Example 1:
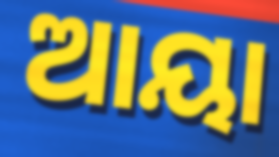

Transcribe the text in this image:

ଆୟା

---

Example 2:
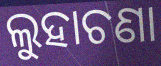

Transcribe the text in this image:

ଲୁହାଚଣା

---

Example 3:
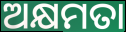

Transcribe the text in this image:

ଅକ୍ଷମତା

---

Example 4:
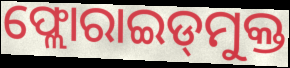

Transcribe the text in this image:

ଫ୍ଲୋରାଇଡ୍‌ମୁକ୍ତ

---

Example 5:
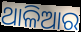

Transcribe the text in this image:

ଥାଳିଆର